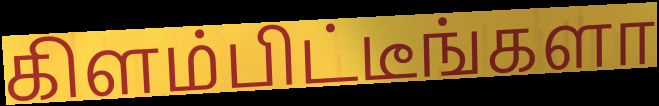
கிளம்பிட்டீங்களா